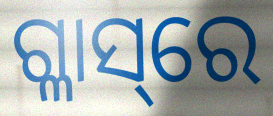
ଗ୍ଳାସ୍‌ରେ